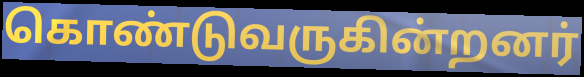
கொண்டுவருகின்றனர்